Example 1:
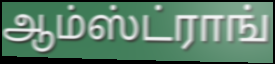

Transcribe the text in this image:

ஆம்ஸ்ட்ராங்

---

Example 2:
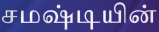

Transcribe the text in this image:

சமஷ்டியின்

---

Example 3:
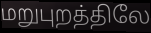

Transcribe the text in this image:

மறுபுறத்திலே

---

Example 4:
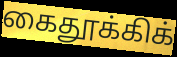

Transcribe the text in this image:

கைதூக்கிக்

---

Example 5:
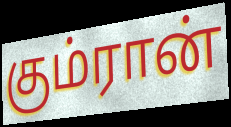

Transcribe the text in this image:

கும்ரான்